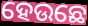
ହେଉଛେ